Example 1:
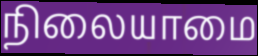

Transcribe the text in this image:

நிலையாமை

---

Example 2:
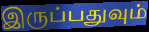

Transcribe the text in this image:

இருப்பதுவும்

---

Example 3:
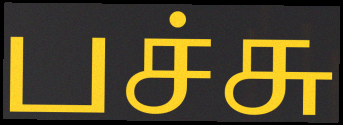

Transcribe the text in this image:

பச்சு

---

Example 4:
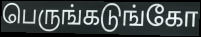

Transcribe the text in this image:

பெருங்கடுங்கோ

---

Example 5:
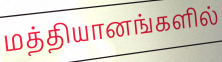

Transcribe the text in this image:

மத்தியானங்களில்